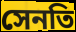
সেনতি